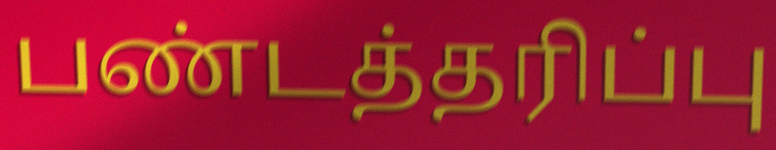
பண்டத்தரிப்பு